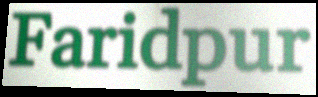
Faridpur